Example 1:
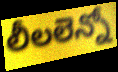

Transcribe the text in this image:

లీలలెన్నో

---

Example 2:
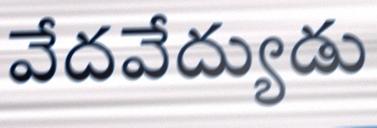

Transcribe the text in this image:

వేదవేద్యుడు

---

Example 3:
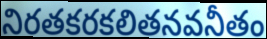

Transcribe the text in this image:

నిరతకరకలితనవనీతం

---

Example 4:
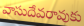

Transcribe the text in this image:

వాసుదేవరావుకు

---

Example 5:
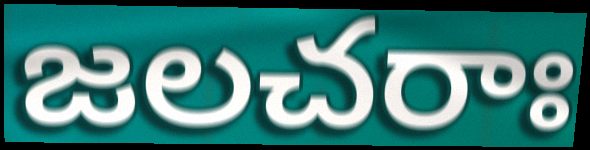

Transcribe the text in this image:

జలచరాః